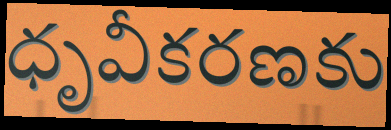
ధృవీకరణకు